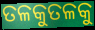
ତଳକୁତଳକୁ